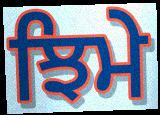
ਝਿਮੇ